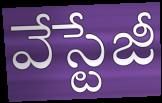
వేస్టేజీ